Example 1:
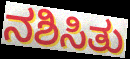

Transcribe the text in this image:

ನಶಿಸಿತು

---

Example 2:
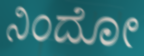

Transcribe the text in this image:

ನಿಂದೋ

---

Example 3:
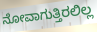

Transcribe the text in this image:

ನೋವಾಗುತ್ತಿರಲಿಲ್ಲ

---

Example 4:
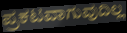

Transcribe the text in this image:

ಪ್ರಕಟವಾಗುವುದಿಲ್ಲ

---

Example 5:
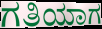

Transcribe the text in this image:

ಗತಿಯಾಗ